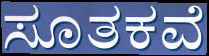
ಸೂತಕವೆ